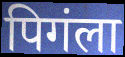
पिगंला